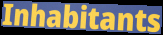
Inhabitants